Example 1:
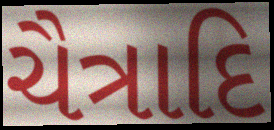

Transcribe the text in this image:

ચૈત્રાદિ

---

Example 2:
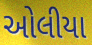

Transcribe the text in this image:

ઓલીયા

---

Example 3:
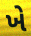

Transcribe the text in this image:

ખે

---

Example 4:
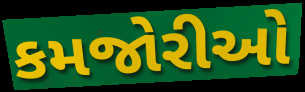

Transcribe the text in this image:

કમજોરીઓ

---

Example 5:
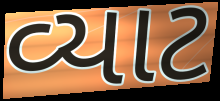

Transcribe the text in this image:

વ્યાટ